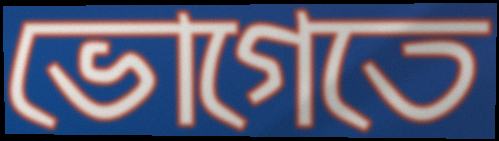
ভোগেতে